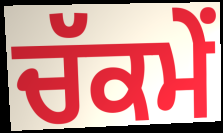
ਚੱਕਮੇਂ